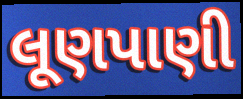
લૂણપાણી